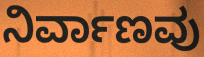
ನಿರ್ವಾಣವು